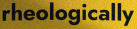
rheologically